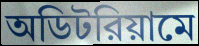
অডিটরিয়ামে